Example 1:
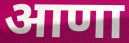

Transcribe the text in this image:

आणा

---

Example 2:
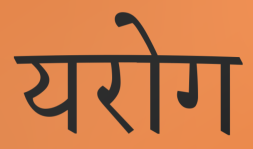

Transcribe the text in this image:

यरोग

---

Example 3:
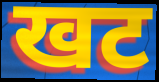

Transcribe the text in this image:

खट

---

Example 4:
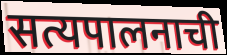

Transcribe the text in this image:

सत्यपालनाची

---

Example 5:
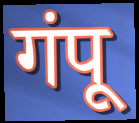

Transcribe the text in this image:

गंपू